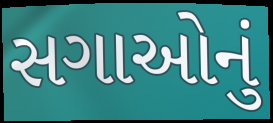
સગાઓનું